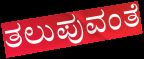
ತಲುಪುವಂತೆ